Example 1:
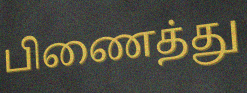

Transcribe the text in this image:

பிணைத்து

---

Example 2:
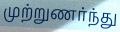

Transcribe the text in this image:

முற்றுணர்ந்து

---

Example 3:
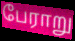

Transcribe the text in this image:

பேராறு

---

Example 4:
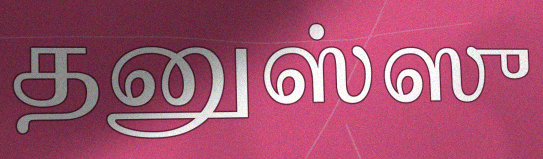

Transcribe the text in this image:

தனுஸ்ஸு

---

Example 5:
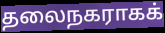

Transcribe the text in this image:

தலைநகராகக்